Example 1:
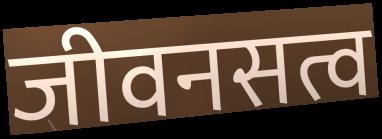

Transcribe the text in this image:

जीवनसत्व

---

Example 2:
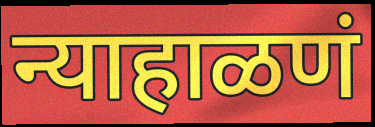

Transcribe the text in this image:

न्याहाळणं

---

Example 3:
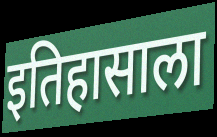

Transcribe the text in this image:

इतिहासाला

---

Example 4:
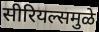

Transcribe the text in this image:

सीरियल्समुळे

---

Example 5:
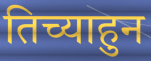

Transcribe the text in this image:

तिच्याहुन